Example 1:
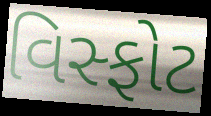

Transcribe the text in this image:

વિસ્ફોટ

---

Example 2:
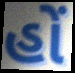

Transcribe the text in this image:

હોં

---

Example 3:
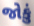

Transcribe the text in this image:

જોકું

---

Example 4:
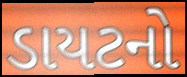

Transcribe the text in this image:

ડાયટનો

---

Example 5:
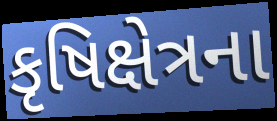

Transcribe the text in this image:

કૃષિક્ષેત્રના